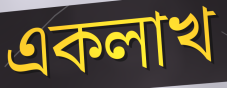
একলাখ